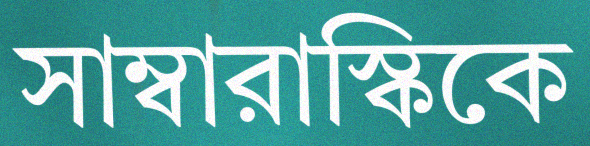
সাম্বারাস্কিকে